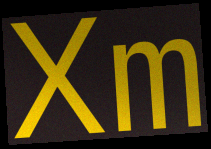
Xm